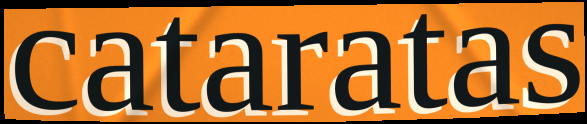
cataratas